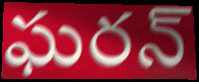
ఘరన్